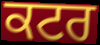
ਕਟਰ